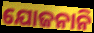
ଯୋଜନାନି